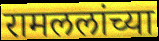
रामललांच्या